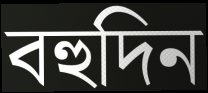
বহুদিন